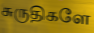
சுருதிகளே